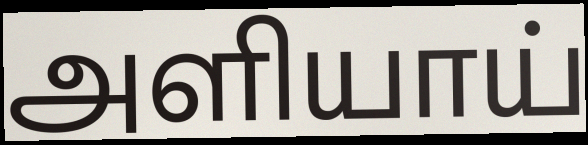
அளியாய்